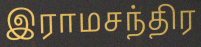
இராமசந்திர